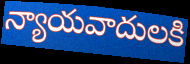
న్యాయవాదులకి